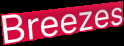
Breezes